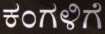
ಕಂಗಳಿಗೆ